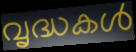
വൃദ്ധകൾ